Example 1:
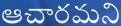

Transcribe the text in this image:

ఆచారమని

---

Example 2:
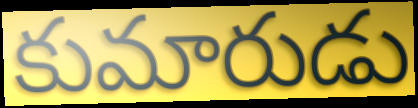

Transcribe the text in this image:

కుమారుడు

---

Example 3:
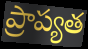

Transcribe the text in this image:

ప్రాప్యత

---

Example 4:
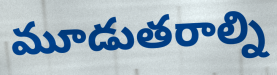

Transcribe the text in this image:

మూడుతరాల్ని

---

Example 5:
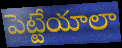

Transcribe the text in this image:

పెట్టేయాలా